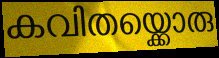
കവിതയ്ക്കൊരു